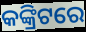
କଙ୍କ୍ରିଟରେ